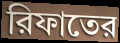
রিফাতের